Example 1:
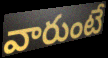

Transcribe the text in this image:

వారుంటే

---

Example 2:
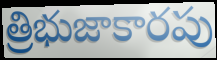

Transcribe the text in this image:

త్రిభుజాకారపు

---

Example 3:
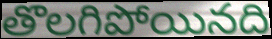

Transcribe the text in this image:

తొలగిపోయినది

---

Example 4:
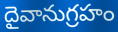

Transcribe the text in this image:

దైవానుగ్రహం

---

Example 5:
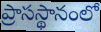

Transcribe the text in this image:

ప్రాసస్థానంలో